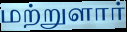
மற்றுளார்